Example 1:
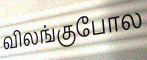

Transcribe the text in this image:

விலங்குபோல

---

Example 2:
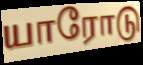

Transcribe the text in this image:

யாரோடு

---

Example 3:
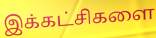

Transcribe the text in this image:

இக்கட்சிகளை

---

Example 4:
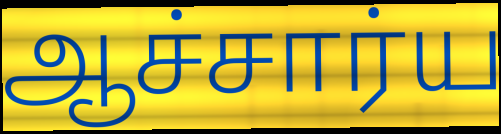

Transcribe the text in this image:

ஆச்சார்ய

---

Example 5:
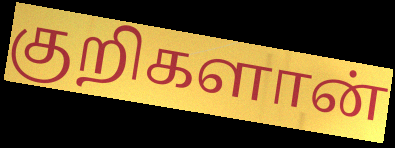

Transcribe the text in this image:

குறிகளான்